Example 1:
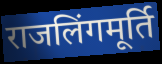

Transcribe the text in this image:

राजलिंगमूर्ति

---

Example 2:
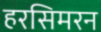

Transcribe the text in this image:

हरसिमरन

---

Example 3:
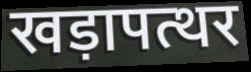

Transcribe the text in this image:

खड़ापत्थर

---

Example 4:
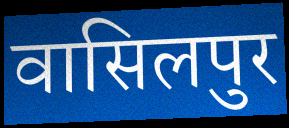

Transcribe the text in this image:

वासिलपुर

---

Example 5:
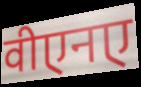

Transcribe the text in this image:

वीएनए